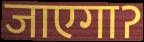
जाएगाॽ